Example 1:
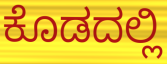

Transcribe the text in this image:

ಕೊಡದಲ್ಲಿ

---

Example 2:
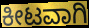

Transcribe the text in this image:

ಕೀಟವಾಗಿ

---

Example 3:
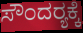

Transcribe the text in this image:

ಸೌಂದರ‍್ಯಕ್ಕೆ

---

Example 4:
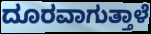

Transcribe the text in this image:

ದೂರವಾಗುತ್ತಾಳೆ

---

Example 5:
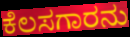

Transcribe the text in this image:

ಕೆಲಸಗಾರನು